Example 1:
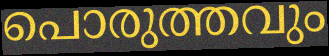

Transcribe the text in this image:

പൊരുത്തവും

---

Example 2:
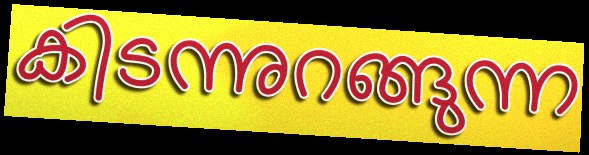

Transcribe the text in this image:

കിടന്നുറങ്ങുന്ന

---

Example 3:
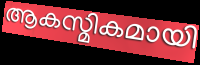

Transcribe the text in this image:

ആകസ്മികമായി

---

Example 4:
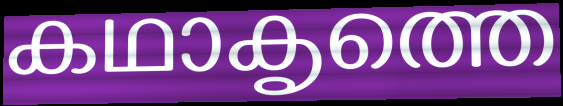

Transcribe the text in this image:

കഥാകൃത്തെ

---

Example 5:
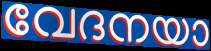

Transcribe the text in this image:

വേദനയാ